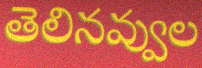
తెలినవ్వుల